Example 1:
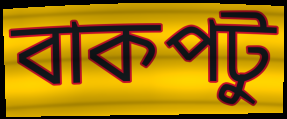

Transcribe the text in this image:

বাকপটু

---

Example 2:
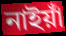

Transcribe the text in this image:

নাইয়াঁ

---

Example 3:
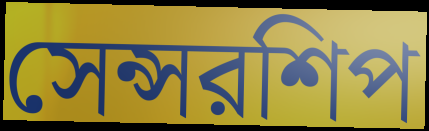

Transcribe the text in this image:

সেন্সরশিপ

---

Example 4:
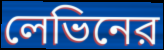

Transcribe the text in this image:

লেভিনের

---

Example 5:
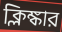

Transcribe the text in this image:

ক্লিঙ্কার